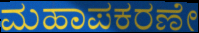
ಮಹಾಪಕರಣೇ